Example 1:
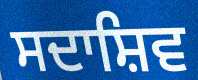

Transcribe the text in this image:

ਸਦਾਸ਼ਿਵ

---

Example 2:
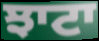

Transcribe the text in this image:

ਝਾਟਾ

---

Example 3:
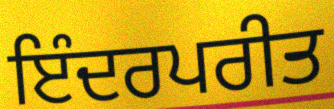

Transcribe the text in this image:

ਇੰਦਰਪਰੀਤ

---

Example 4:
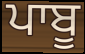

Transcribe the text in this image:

ਪਾਬੂ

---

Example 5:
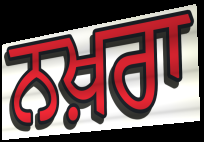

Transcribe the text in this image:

ਨਖ਼ਰਾ